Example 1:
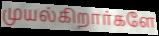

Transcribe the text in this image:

முயல்கிறார்களே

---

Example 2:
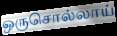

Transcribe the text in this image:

ஒருசொல்லாய்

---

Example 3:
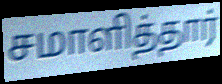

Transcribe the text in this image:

சமாளித்தார்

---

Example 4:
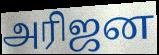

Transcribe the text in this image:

அரிஜன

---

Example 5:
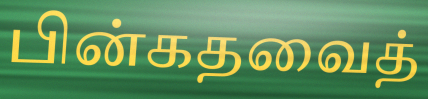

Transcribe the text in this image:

பின்கதவைத்